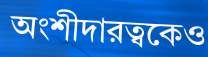
অংশীদারত্বকেও